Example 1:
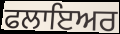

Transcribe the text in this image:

ਫਲਾਇਅਰ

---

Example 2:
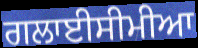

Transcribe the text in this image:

ਗਲਾਈਸੀਮੀਆ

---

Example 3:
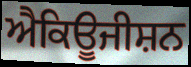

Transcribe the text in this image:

ਐਕਿਊਜੀਸ਼ਨ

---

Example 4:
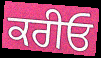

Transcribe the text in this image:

ਕਰੀਓ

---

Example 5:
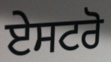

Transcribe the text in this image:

ਏਸਟਰੋ